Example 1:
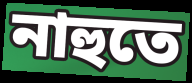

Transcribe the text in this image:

নাহুতে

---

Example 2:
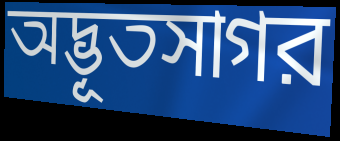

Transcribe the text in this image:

অদ্ভূতসাগর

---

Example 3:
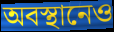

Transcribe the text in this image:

অবস্থানেও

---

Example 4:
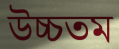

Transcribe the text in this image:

উচ্চতম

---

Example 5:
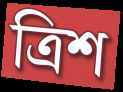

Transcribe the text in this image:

ত্রিশ